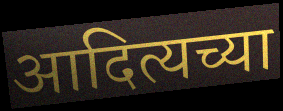
आदित्यच्या